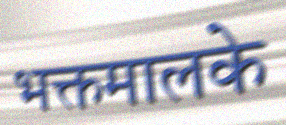
भक्तमालके